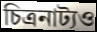
চিত্রনাট্যও